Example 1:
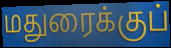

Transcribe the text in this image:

மதுரைக்குப்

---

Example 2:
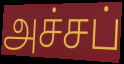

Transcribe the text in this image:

அச்சப்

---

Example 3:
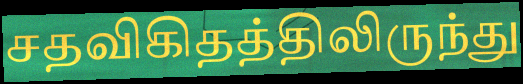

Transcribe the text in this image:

சதவிகிதத்திலிருந்து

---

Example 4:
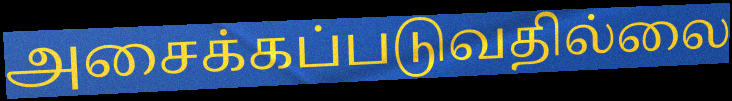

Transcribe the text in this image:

அசைக்கப்படுவதில்லை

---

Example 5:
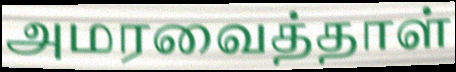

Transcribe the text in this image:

அமரவைத்தாள்